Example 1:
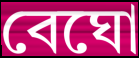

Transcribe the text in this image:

বেঘো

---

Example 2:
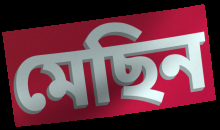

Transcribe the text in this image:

মেছিন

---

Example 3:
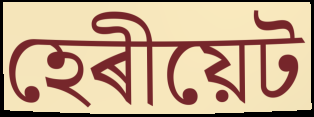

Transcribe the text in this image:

হেৰীয়েট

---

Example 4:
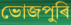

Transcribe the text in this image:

ভোজপুৰি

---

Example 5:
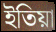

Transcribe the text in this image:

ইতিয়া